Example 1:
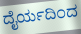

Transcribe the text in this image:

ದೈರ್ಯದಿಂದ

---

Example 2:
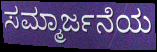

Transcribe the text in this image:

ಸಮ್ಮಾರ್ಜನೆಯ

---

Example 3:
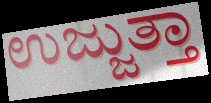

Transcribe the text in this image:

ಉಜ್ಜುತ್ತಾ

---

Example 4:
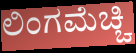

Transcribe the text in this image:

ಲಿಂಗಮೆಚ್ಚಿ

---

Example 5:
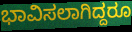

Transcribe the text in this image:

ಭಾವಿಸಲಾಗಿದ್ದರೂ